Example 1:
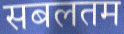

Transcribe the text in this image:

सबलतम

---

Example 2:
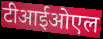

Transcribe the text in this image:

टीआईओएल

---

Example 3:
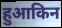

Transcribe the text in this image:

हुआकिन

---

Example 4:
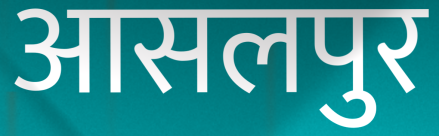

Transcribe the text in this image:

आसलपुर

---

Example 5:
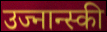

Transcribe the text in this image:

उज्नान्स्की